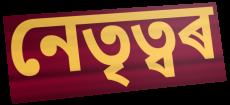
নেতৃত্বৰ